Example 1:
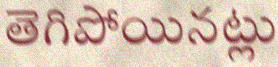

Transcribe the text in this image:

తెగిపోయినట్లు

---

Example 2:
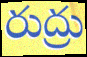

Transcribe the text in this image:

రుద్రు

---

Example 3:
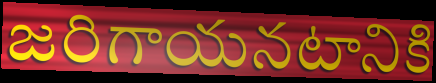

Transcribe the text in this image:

జరిగాయనటానికి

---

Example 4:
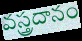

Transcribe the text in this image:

వస్త్రదానం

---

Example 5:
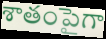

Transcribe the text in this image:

శాతంపైగా